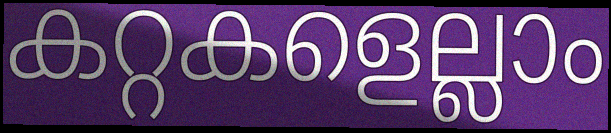
കറ്റകളെല്ലാം